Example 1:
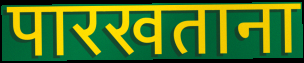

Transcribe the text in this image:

पारखताना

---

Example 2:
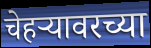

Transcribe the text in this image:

चेहर्‍यावरच्या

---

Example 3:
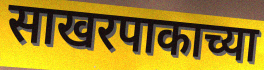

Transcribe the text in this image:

साखरपाकाच्या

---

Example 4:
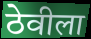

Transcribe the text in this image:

ठेवीला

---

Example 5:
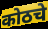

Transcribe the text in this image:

कोठचे